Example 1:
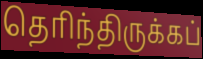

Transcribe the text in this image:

தெரிந்திருக்கப்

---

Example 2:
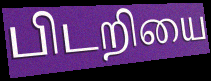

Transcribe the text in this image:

பிடறியை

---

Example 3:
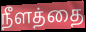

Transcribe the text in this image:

நீளத்தை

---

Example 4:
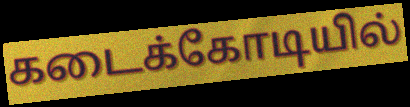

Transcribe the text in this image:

கடைக்கோடியில்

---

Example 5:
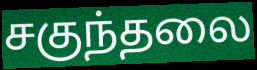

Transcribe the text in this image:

சகுந்தலை